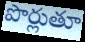
పొర్లుతూ